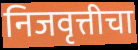
निजवृत्तीचा